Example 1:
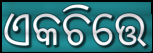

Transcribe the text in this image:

ଏକଚିତ୍ତେ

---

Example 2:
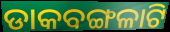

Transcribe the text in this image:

ଡାକବଙ୍ଗଳାଟି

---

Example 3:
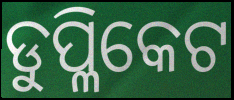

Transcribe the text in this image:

ଡୁପ୍ଳିକେଟ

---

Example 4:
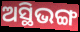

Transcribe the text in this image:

ଅସ୍ଥିଭଙ୍ଗ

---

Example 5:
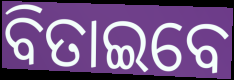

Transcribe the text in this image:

ବିତାଇବେ